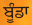
ਬੂੰਡਾ